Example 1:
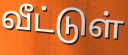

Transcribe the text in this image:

வீட்டுள்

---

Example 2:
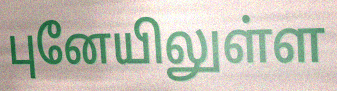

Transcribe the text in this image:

புனேயிலுள்ள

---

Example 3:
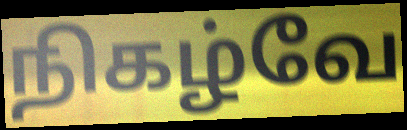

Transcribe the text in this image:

நிகழ்வே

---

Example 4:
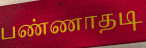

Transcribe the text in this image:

பண்ணாதடி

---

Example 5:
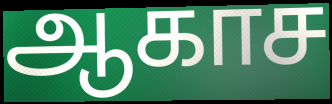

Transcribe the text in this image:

ஆகாச